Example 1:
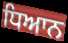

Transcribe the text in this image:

ਧਿਆਨ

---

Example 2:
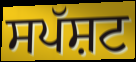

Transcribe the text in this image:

ਸਪੱਸ਼ਟ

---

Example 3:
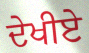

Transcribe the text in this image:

ਦੇਖੀਏ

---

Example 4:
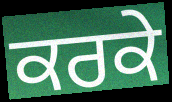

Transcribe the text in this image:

ਕਰਕੇ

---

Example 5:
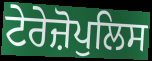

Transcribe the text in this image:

ਟੇਰੇਜ਼ੋਪੁਲਿਸ